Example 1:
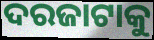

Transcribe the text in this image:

ଦରଜାଟାକୁ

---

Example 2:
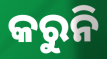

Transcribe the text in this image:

କରୁନି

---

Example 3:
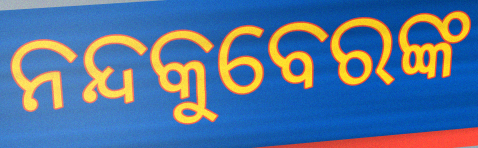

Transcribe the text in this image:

ନନ୍ଦକୁବେରଙ୍କ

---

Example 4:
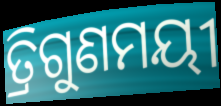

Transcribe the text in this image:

ତ୍ରିଗୁଣମୟୀ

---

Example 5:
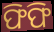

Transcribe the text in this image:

ଫିଫି